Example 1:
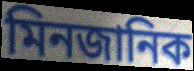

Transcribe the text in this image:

মিনজানিক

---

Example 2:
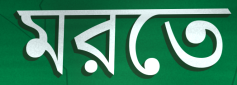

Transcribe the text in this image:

মরতে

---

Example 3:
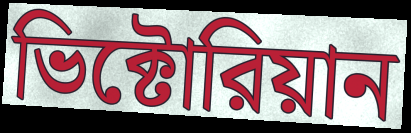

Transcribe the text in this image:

ভিক্টোরিয়ান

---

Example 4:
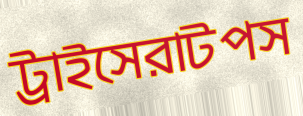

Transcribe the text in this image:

ট্রাইসেরাটপস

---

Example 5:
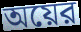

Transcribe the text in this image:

অয়ের